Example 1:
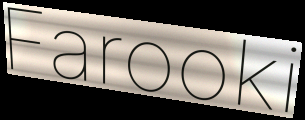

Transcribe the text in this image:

Farooki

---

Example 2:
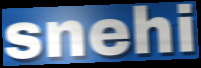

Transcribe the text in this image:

snehi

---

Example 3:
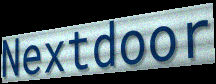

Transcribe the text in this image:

Nextdoor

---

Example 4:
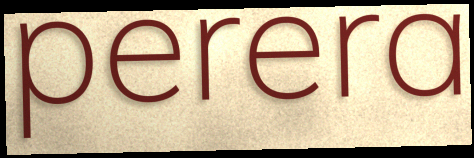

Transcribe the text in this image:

perera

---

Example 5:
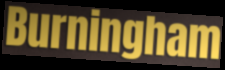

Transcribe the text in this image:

Burningham